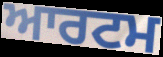
ਆਰਟਮ